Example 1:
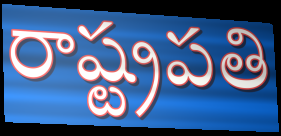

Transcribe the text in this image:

రాష్ట్రపతి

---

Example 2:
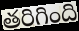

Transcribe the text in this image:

తరిగింది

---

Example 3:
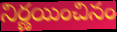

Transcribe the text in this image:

నిర్ణయించినం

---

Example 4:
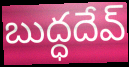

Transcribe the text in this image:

బుద్ధదేవ్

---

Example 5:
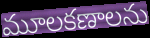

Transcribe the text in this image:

మూలకణాలను